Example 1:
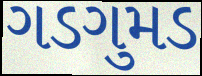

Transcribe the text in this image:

ગડગુમડ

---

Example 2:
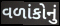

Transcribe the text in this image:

વળાંકોનું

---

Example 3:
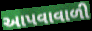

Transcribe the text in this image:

આપવાવાળી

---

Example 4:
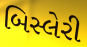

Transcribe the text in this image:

બિસ્લેરી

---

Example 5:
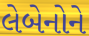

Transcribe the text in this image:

લેબેનોને